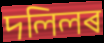
দলিলৰ